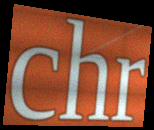
chr